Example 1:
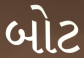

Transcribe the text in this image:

બોટ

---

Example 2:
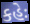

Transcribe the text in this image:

કહેઃ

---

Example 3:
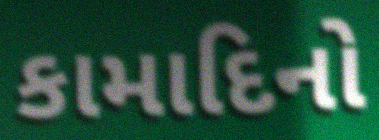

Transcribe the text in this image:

કામાદિનો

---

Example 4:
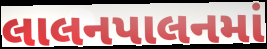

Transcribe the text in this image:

લાલનપાલનમાં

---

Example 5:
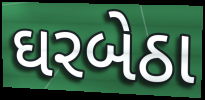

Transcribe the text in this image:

ઘરબેઠા